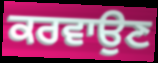
ਕਰਵਾਉਣ